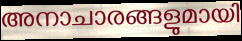
അനാചാരങ്ങളുമായി